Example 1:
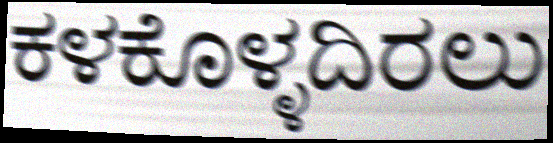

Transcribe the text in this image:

ಕಳಕೊಳ್ಳದಿರಲು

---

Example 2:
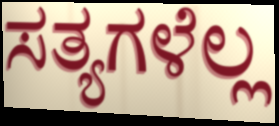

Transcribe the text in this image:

ಸತ್ಯಗಳೆಲ್ಲ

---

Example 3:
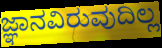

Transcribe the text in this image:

ಜ್ಞಾನವಿರುವುದಿಲ್ಲ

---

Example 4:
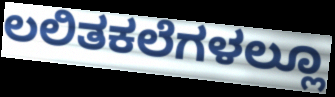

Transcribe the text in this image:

ಲಲಿತಕಲೆಗಳಲ್ಲೂ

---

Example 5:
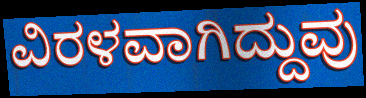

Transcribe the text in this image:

ವಿರಳವಾಗಿದ್ದುವು